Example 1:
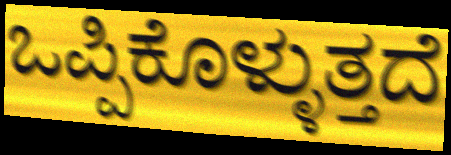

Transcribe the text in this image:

ಒಪ್ಪಿಕೊಳ್ಳುತ್ತದೆ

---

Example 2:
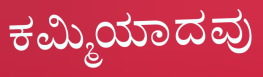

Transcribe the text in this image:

ಕಮ್ಮಿಯಾದವು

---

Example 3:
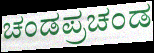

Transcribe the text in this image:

ಚಂಡಪ್ರಚಂಡ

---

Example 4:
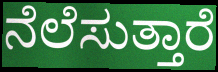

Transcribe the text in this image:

ನೆಲೆಸುತ್ತಾರೆ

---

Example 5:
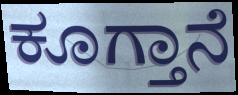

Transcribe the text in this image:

ಕೂಗ್ತಾನೆ